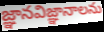
జ్ఞానవిజ్ఞానాలను